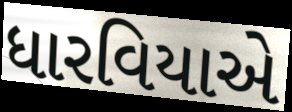
ધારવિયાએ